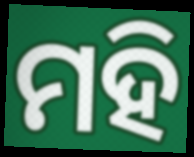
ମହି